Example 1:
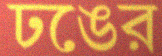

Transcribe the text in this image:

ঢঙের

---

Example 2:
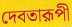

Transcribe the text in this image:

দেবতারূপী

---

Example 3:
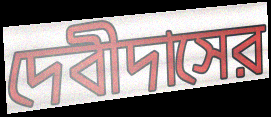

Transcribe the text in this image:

দেবীদাসের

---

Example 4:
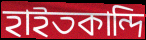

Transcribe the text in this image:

হাইতকান্দি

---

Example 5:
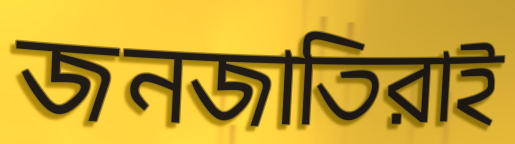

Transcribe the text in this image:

জনজাতিরাই